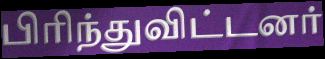
பிரிந்துவிட்டனர்